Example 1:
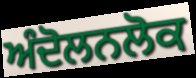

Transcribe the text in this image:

ਅੰਦੋਲਨਲੋਕ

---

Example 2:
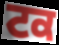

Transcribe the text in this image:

ਟਕ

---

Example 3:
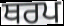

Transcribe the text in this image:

ਥਰਪ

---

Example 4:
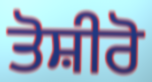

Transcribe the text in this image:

ਤੋਸ਼ੀਰੋ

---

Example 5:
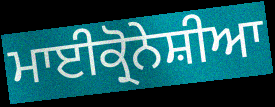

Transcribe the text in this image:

ਮਾਈਕ੍ਰੋਨੇਸ਼ੀਆ